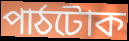
পাঠটোক